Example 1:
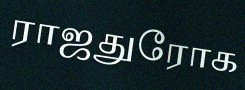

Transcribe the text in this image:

ராஜதுரோக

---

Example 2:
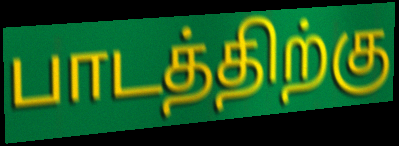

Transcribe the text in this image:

பாடத்திற்கு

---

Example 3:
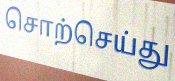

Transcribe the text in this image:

சொற்செய்து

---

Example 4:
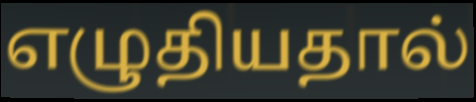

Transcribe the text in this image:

எழுதியதால்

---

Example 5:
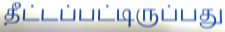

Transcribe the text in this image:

தீட்டப்பட்டிருப்பது